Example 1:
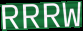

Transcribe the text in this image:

RRRW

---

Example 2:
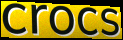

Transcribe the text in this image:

crocs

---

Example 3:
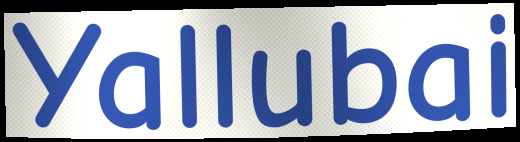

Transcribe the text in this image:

Yallubai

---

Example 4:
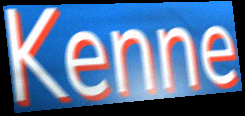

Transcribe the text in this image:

Kenne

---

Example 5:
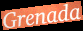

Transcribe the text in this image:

Grenada